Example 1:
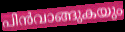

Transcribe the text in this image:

പിൻവാങ്ങുകയും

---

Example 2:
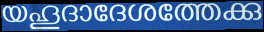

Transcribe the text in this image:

യഹൂദാദേശത്തേക്കു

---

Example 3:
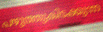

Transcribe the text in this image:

പഴുത്തുകിടക്കുന്ന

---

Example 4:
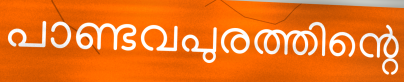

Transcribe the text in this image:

പാണ്ടവപുരത്തിന്റെ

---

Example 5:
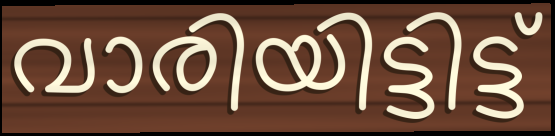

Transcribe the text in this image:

വാരിയിട്ടിട്ട്